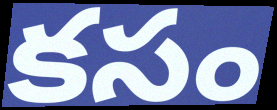
కసం